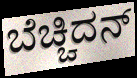
ಬೆಚ್ಚಿದನ್